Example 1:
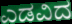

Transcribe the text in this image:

ಎಡವಿದ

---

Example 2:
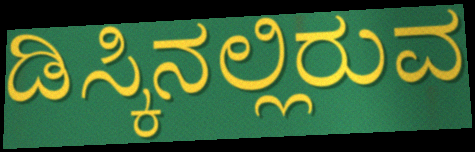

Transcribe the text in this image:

ಡಿಸ್ಕಿನಲ್ಲಿರುವ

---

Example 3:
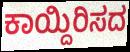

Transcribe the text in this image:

ಕಾಯ್ದಿರಿಸದ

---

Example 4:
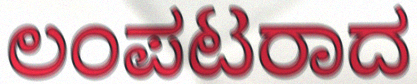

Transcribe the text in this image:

ಲಂಪಟರಾದ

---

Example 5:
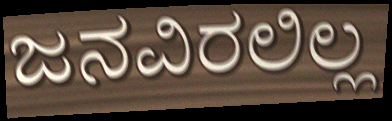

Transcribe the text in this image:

ಜನವಿರಲಿಲ್ಲ